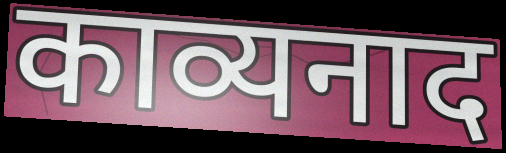
काव्यनाद